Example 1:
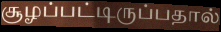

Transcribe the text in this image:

சூழப்பட்டிருப்பதால்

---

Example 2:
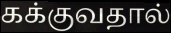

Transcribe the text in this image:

கக்குவதால்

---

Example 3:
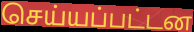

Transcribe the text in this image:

செய்யப்பட்டன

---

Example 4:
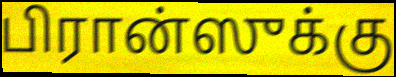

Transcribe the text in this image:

பிரான்ஸுக்கு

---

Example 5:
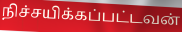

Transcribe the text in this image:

நிச்சயிக்கப்பட்டவன்